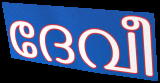
ദേവീ